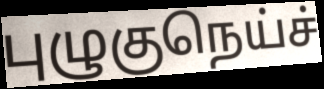
புழுகுநெய்ச்